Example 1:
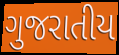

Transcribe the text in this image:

ગુજરાતીય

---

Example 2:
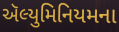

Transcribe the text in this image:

ઍલ્યુમિનિયમના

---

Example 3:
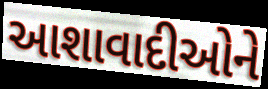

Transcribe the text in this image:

આશાવાદીઓને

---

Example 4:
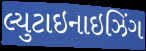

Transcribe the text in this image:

લ્યુટાઇનાઇઝિંગ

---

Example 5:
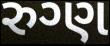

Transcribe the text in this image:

રુગ્ણ